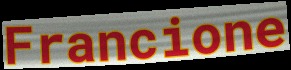
Francione